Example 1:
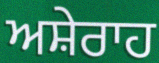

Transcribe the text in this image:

ਅਸ਼ੇਰਾਹ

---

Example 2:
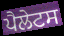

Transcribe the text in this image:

ਪੈਲੇਟਸ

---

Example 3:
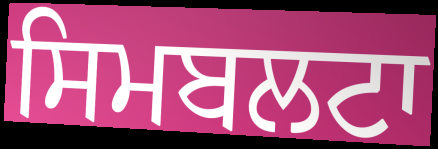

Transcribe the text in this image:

ਸਿਮਬਲਟਾ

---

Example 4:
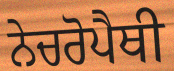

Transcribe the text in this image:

ਨੇਚਰੋਪੈਥੀ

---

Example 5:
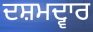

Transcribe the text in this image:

ਦਸ਼ਮਦ੍ਵਾਰ